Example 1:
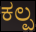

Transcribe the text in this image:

ಕಲ್ಪ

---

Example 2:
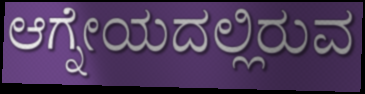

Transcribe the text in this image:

ಆಗ್ನೇಯದಲ್ಲಿರುವ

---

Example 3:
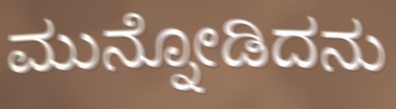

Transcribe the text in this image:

ಮುನ್ನೋಡಿದನು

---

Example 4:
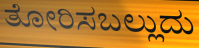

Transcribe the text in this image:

ತೋರಿಸಬಲ್ಲುದು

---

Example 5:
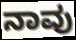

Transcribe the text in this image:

ನಾವು